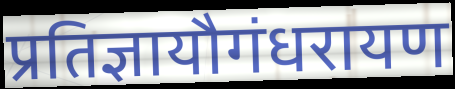
प्रतिज्ञायौगंधरायण